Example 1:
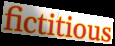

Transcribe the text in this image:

fictitious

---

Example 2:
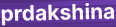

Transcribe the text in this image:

prdakshina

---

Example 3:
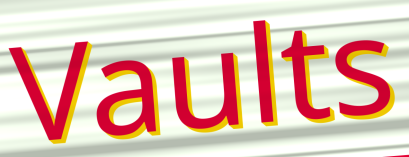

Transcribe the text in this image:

Vaults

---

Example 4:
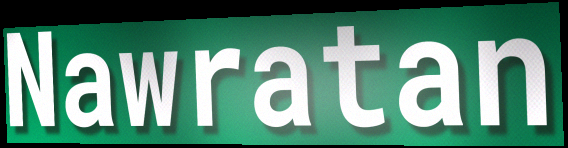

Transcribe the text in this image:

Nawratan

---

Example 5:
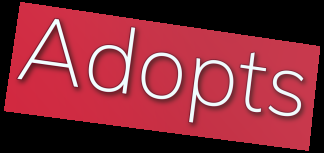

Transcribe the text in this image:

Adopts